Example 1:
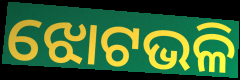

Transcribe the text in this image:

ଝୋଟଭଳି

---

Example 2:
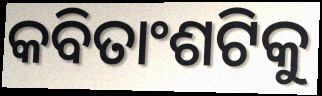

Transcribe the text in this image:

କବିତାଂଶଟିକୁ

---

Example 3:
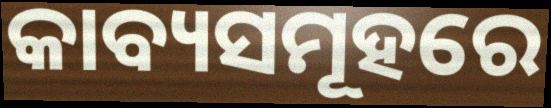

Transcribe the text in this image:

କାବ୍ୟସମୂହରେ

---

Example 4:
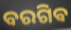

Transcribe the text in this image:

ବରଗିଵ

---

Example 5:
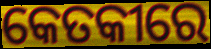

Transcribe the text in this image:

କେତକୀରେ